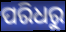
ପରିଧରୁ